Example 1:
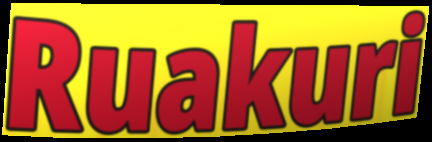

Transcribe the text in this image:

Ruakuri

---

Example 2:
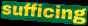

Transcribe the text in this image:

sufficing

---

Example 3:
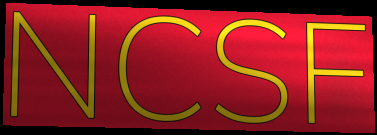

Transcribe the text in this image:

NCSF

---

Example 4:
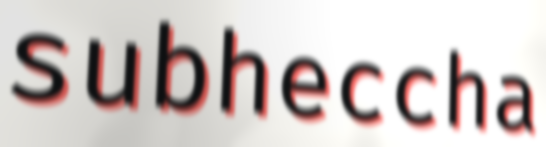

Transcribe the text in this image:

subheccha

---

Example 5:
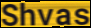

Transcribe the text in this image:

Shvas